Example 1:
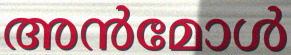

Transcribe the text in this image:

അൻമോൾ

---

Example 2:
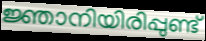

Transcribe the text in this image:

ജ്ഞാനിയിരിപ്പുണ്ട്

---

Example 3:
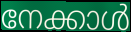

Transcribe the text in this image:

നേക്കാൾ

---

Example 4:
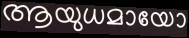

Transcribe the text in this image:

ആയുധമായോ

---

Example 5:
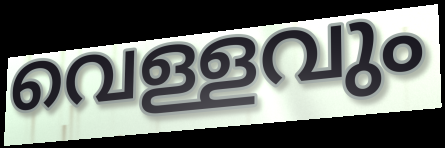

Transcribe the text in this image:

വെള്ളവും